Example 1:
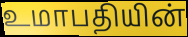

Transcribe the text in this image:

உமாபதியின்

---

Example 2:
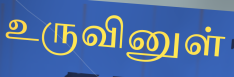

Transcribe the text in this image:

உருவினுள்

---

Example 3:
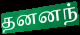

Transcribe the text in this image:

தனனந்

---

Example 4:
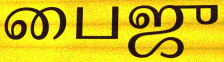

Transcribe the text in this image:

பைஜு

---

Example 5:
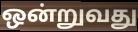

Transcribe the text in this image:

ஒன்றுவது